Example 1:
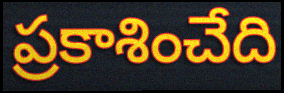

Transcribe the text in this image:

ప్రకాశించేది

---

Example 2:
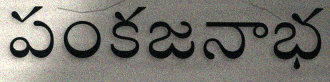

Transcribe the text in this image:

పంకజనాభ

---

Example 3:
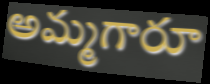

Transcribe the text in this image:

అమ్మగారూ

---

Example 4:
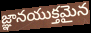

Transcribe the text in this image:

జ్ఞానయుక్తమైన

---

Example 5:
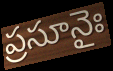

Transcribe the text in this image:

ప్రసూనైః